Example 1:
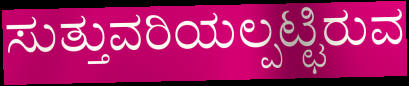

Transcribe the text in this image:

ಸುತ್ತುವರಿಯಲ್ಪಟ್ಟಿರುವ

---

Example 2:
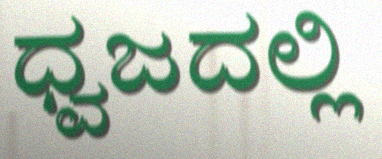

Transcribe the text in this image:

ಧ್ವಜದಲ್ಲಿ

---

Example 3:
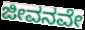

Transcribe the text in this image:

ಜೀವನವೇ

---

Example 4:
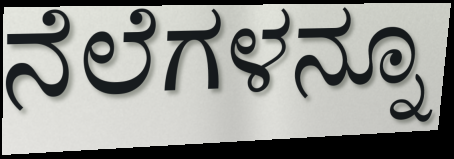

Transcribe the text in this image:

ನೆಲೆಗಳನ್ನೂ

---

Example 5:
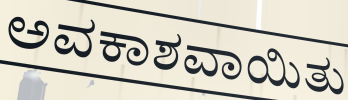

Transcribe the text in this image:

ಅವಕಾಶವಾಯಿತು